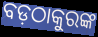
ବଡ଼ଠାକୁରଙ୍କ